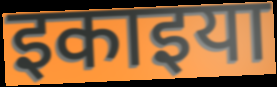
इकाइया